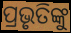
ପ୍ରଭୃତିଙ୍କୁ